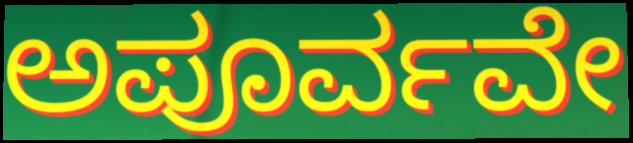
ಅಪೂರ್ವವೇ